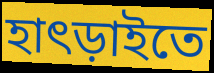
হাৎড়াইতে